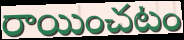
రాయించటం